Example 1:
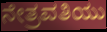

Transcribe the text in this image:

ನೇತ್ರವತಿಯು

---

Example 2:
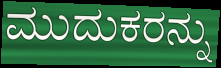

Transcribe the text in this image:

ಮುದುಕರನ್ನು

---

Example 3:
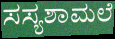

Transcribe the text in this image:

ಸಸ್ಯಶಾಮಲೆ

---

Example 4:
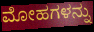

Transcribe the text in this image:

ಮೋಹಗಳನ್ನು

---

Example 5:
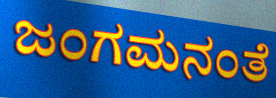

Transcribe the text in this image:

ಜಂಗಮನಂತೆ